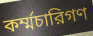
কর্ম্মচারিগণ